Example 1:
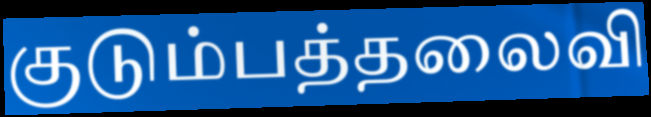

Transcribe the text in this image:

குடும்பத்தலைவி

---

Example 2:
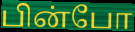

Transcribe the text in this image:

பின்போ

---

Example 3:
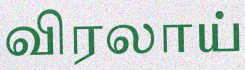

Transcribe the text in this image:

விரலாய்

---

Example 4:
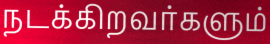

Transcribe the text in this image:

நடக்கிறவர்களும்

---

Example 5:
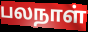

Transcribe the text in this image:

பலநாள்